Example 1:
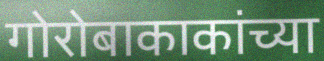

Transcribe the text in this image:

गोरोबाकाकांच्या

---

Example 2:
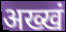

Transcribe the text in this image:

अख्खं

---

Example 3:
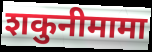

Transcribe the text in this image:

शकुनीमामा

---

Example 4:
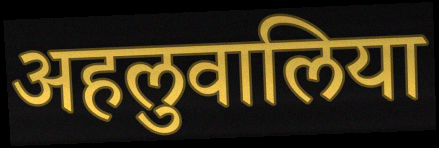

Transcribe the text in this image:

अहलुवालिया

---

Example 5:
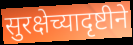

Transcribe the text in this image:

सुरक्षेच्यादृष्टीने